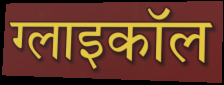
ग्लाइकॉल